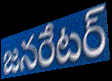
జనరేటర్